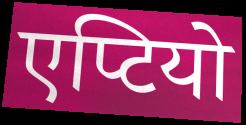
एप्टियो